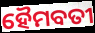
ହୈମବତୀ